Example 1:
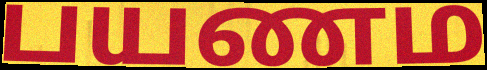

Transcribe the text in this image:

பயணம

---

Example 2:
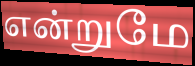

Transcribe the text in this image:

என்றுமே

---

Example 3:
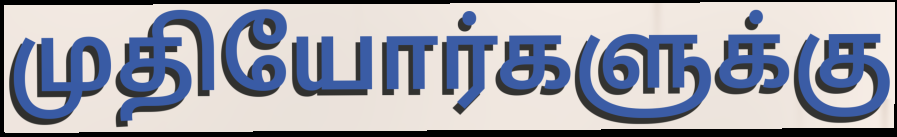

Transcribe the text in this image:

முதியோர்களுக்கு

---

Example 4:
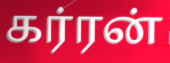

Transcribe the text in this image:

கர்ரன்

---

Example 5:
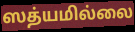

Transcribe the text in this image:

ஸத்யமில்லை